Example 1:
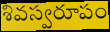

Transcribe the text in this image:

శివస్వరూపం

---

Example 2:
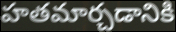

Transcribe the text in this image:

హతమార్చడానికి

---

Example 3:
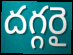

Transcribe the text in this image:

దగ్గరై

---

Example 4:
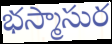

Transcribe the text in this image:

భస్మాసుర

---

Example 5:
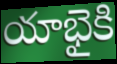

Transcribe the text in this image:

యాభైకి